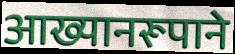
आख्यानरूपाने